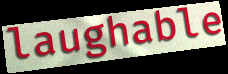
laughable